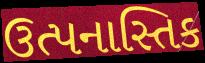
ઉત્પનાસ્તિક